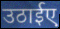
उठाईए